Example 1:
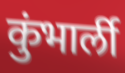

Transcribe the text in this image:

कुंभार्ली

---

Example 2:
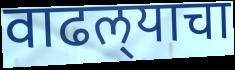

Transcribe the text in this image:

वाढल्याचा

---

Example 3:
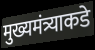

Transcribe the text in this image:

मुख्यमंत्र्याकडे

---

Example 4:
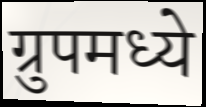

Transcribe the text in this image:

ग्रुपमध्ये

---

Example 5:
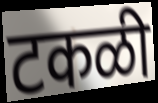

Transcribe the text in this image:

टकळी